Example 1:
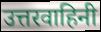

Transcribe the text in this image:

उत्तरवाहिनी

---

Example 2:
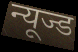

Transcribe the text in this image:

न्यूज्ड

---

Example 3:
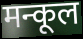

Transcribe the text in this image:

मन्कूल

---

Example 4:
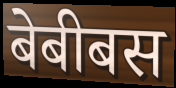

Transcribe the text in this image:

बेबीबस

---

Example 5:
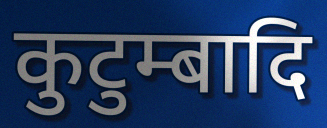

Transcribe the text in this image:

कुटुम्बादि